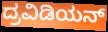
ದ್ರವಿಡಿಯನ್